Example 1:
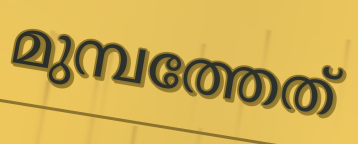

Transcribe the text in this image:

മുമ്പത്തേത്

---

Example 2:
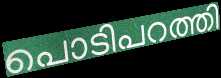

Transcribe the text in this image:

പൊടിപറത്തി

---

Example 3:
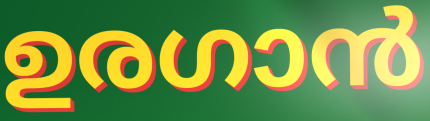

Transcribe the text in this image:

ഉരഗാൻ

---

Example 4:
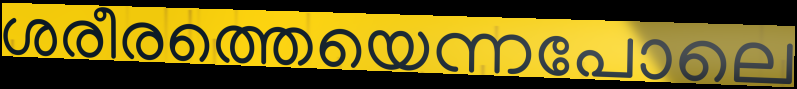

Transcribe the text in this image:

ശരീരത്തെയെന്നപോലെ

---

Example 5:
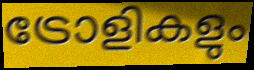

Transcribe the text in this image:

ട്രോളികളും